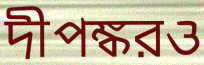
দীপঙ্করও